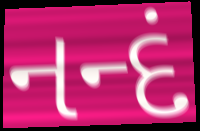
નન્દં